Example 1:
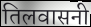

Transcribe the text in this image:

तिलवासनी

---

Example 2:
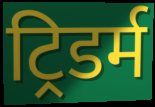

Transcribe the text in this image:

ट्रिडर्म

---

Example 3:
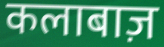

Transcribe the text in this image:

कलाबाज़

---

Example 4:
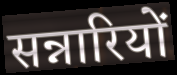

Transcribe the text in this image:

सन्नारियों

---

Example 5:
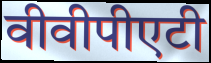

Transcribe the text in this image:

वीवीपीएटी